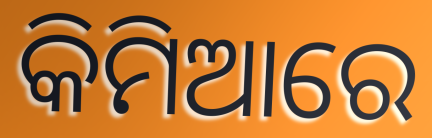
କିମିଆରେ